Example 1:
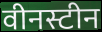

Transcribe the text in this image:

वीनस्टीन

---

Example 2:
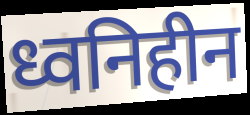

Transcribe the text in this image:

ध्वनिहीन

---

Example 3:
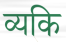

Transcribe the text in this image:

व्यकि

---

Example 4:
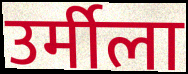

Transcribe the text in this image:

उर्मीला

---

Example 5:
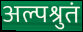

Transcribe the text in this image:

अल्पश्रुतं